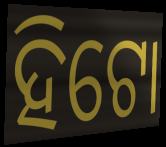
ହିଟୋ